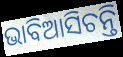
ଭାବିଆସିଚନ୍ତି